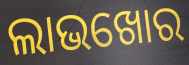
ଲାଭଖୋର